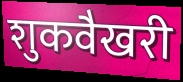
शुकवैखरी